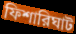
ফিশারিঘাট